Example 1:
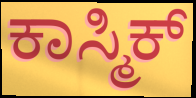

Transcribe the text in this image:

ಕಾಸ್ಮಿಕ್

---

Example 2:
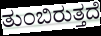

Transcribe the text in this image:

ತುಂಬಿರುತ್ತದೆ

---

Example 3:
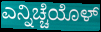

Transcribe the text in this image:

ಎನ್ನಿಚ್ಚೆಯೊಳ್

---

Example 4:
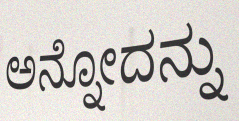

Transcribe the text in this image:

ಅನ್ನೋದನ್ನು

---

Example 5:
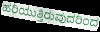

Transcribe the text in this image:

ಹರಿಯುತ್ತಿರುವುದರಿಂದ